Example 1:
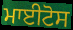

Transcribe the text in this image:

ਮਾਈਟੋਸ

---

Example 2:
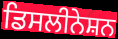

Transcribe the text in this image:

ਡਿਸਲੀਨੇਸ਼ਨ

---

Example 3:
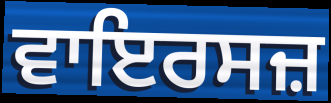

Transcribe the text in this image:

ਵਾਇਰਸਜ਼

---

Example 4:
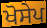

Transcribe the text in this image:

ਖੋਸੇਪ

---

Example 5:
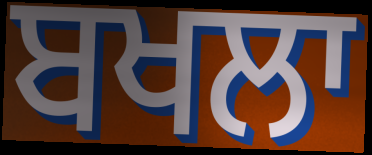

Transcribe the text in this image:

ਬਖਲਾ